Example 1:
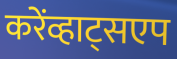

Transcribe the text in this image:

करेंव्हाट्सएप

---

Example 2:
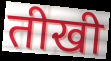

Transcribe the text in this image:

तीखी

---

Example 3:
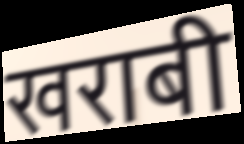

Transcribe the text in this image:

खराबी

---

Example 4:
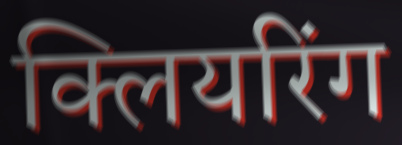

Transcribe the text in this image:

क्लियरिंग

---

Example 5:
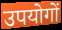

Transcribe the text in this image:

उपयोगों